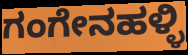
ಗಂಗೇನಹಳ್ಳಿ